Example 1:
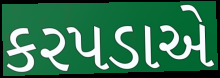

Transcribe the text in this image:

કરપડાએ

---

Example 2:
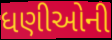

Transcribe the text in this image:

ધણીઓની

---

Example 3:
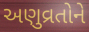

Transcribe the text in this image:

અણુવ્રતોને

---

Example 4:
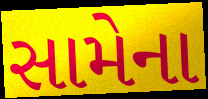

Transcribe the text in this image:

સામેના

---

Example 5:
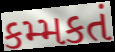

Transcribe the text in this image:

કમ્મકતં